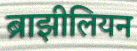
ब्राझीलियन